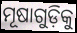
ମୂଷାଗୁଡ଼ିକୁ